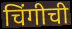
चिंगीची